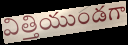
విత్తియుండగా